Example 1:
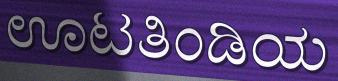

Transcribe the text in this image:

ಊಟತಿಂಡಿಯ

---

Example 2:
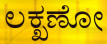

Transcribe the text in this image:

ಲಕ್ಖಣೋ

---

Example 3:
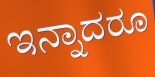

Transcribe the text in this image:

ಇನ್ನಾದರೂ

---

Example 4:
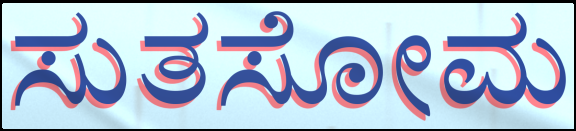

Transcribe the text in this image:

ಸುತಸೋಮ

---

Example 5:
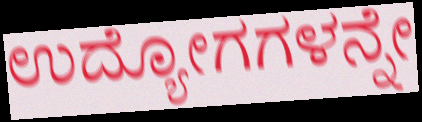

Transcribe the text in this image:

ಉದ್ಯೋಗಗಳನ್ನೇ